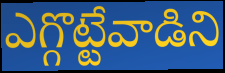
ఎగ్గొట్టేవాడిని